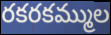
రకరకమ్ముల